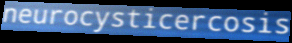
neurocysticercosis